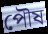
পৌষ